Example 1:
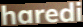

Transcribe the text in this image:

haredi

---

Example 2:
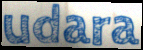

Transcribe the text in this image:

udara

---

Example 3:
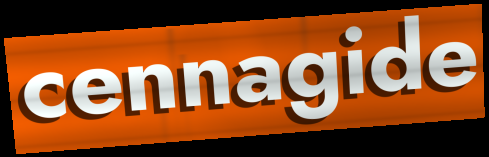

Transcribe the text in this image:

cennagide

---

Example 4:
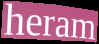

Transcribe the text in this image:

heram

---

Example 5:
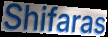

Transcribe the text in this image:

Shifaras